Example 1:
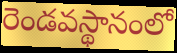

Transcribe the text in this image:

రెండవస్థానంలో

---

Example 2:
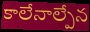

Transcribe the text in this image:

కాలేనాల్పేన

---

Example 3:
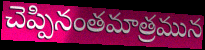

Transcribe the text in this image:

చెప్పినంతమాత్రమున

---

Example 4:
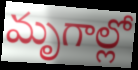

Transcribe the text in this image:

మృగాల్లో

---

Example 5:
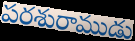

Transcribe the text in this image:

పరశురాముడు